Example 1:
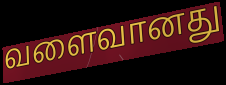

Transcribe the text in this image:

வளைவானது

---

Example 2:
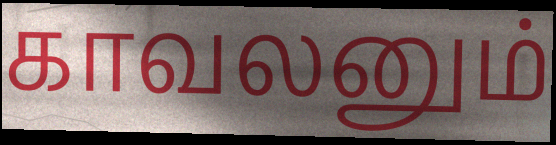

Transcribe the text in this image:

காவலனும்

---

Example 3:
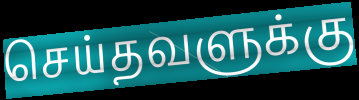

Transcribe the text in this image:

செய்தவளுக்கு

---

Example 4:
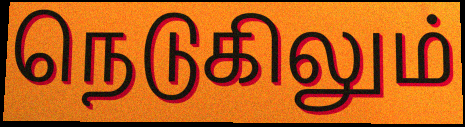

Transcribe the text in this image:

நெடுகிலும்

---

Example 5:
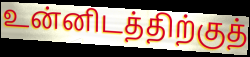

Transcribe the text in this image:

உன்னிடத்திற்குத்